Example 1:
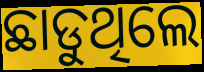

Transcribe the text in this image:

ଛାଡୁଥିଲେ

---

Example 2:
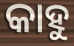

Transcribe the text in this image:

କାହୁ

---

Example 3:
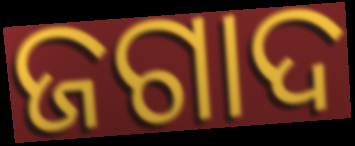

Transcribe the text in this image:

ଜଗାଦ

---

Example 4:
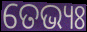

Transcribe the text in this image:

ତେଭ୍ୟଃ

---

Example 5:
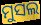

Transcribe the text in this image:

ମୁସଲ